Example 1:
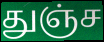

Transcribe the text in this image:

துஞ்ச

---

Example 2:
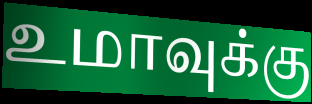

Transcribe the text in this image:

உமாவுக்கு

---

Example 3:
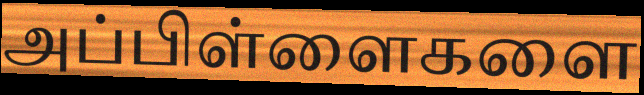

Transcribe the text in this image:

அப்பிள்ளைகளை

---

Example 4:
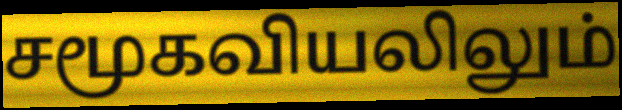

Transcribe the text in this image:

சமூகவியலிலும்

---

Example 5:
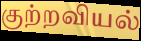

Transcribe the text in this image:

குற்றவியல்